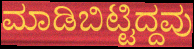
ಮಾಡಿಬಿಟ್ಟಿದ್ದವು